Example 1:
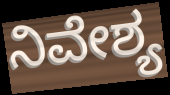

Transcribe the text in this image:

ನಿವೇಶ್ಯ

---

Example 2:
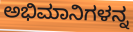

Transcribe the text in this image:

ಅಭಿಮಾನಿಗಳನ್ನ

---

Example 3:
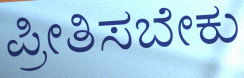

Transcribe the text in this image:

ಪ್ರೀತಿಸಬೇಕು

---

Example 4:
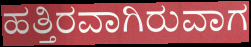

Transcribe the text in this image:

ಹತ್ತಿರವಾಗಿರುವಾಗ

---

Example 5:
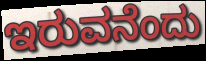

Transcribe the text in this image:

ಇರುವನೆಂದು